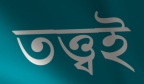
তত্ত্বই